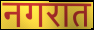
नगरात